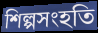
শিল্পসংহতি